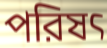
পরিষৎ